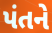
પંતને